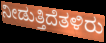
ನೀಡುತ್ತಿದೆತಳಿರು